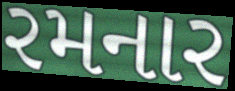
રમનાર